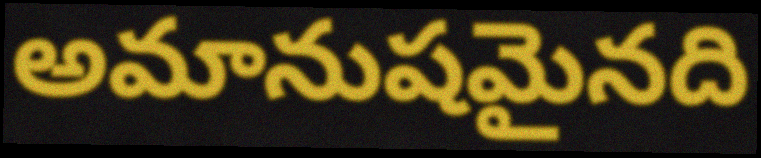
అమానుషమైనది